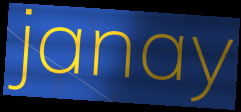
janay